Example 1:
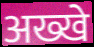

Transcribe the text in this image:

अख्खे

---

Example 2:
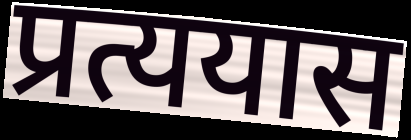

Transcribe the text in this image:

प्रत्ययास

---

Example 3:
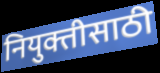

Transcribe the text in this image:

नियुक्तीसाठी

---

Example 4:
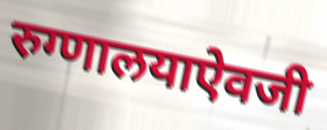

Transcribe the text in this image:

रुग्णालयाऐवजी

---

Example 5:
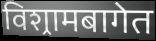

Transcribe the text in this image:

विश्रामबागेत